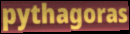
pythagoras